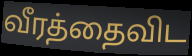
வீரத்தைவிட